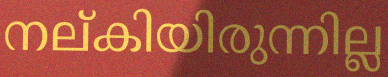
നല്കിയിരുന്നില്ല